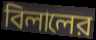
বিলালের